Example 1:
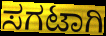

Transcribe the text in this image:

ಸಗಟಾಗಿ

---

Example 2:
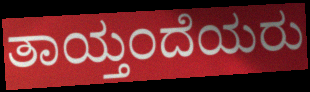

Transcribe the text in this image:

ತಾಯ್ತಂದೆಯರು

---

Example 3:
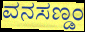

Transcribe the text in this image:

ವನಸಣ್ಡಂ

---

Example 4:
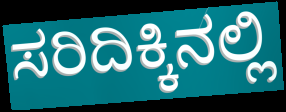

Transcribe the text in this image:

ಸರಿದಿಕ್ಕಿನಲ್ಲಿ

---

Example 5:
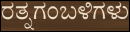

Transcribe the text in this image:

ರತ್ನಗಂಬಳಿಗಳು